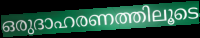
ഒരുദാഹരണത്തിലൂടെ